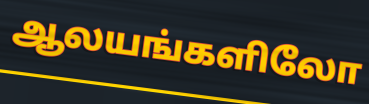
ஆலயங்களிலோ